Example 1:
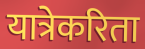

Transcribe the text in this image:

यात्रेकरिता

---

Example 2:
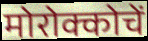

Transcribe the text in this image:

मोरोक्कोचें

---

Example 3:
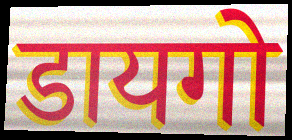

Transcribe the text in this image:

डायगो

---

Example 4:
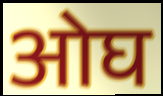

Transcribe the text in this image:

ओघ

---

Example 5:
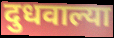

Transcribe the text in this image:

दुधवाल्या